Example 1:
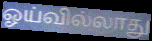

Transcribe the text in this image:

ஓய்வில்லாது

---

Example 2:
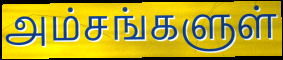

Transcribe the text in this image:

அம்சங்களுள்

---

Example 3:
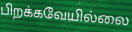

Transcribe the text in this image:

பிறக்கவேயில்லை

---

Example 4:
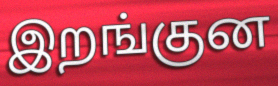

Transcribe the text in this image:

இறங்குன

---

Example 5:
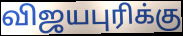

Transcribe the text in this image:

விஜயபுரிக்கு